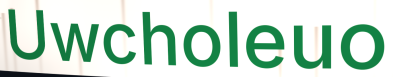
Uwcholeuo